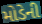
મોડેની